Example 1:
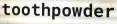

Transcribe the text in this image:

toothpowder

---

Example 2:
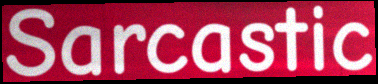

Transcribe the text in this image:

Sarcastic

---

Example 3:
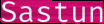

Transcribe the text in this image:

Sastun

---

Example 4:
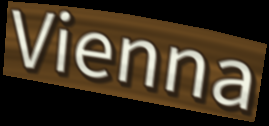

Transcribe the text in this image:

Vienna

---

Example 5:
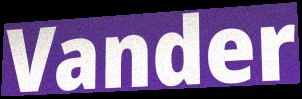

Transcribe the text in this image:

Vander